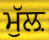
ਮੁੱਲ਼